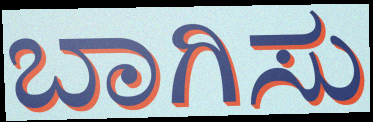
ಬಾಗಿಸು